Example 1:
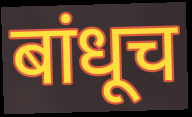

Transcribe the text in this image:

बांधूच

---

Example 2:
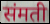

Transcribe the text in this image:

संमती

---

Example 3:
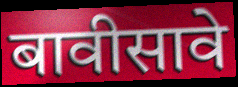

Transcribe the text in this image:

बावीसावे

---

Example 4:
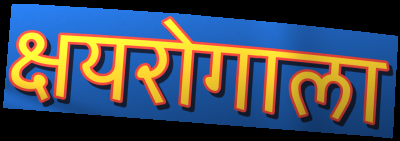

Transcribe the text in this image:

क्षयरोगाला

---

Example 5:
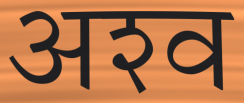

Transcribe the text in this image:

अश्व